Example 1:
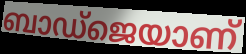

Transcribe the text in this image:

ബാഡ്ജെയാണ്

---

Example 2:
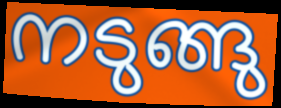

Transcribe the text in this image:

നടുങ്ങു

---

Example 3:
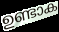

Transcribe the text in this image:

ഉണ്ടാക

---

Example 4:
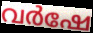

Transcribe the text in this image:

വർഷേ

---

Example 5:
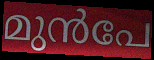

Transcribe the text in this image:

മുൻപേ